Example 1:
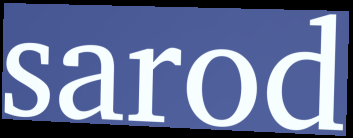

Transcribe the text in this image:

sarod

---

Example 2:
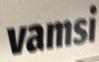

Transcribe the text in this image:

vamsi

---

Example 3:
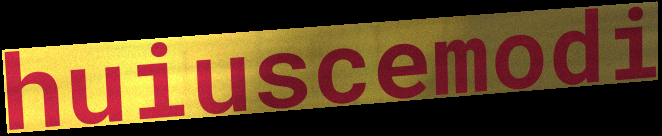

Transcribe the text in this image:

huiuscemodi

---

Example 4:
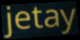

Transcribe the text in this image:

jetay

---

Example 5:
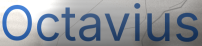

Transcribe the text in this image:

Octavius